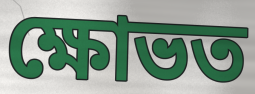
ক্ষোভত